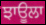
ਝਾਊਲਾ